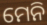
ମେନି